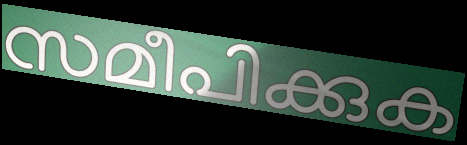
സമീപിക്കുക